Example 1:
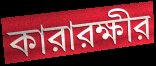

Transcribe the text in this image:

কারারক্ষীর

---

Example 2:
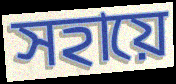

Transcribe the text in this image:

সহায়ে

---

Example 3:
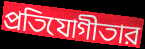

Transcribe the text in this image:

প্রতিযোগীতার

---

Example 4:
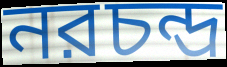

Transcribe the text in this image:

নরচন্দ্র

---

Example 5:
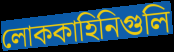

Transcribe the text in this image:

লোককাহিনিগুলি